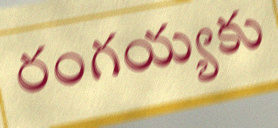
రంగయ్యకు